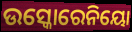
ଉସ୍କୋରେନିୟୋ